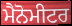
ਮੈਨੋਮੀਟਰ